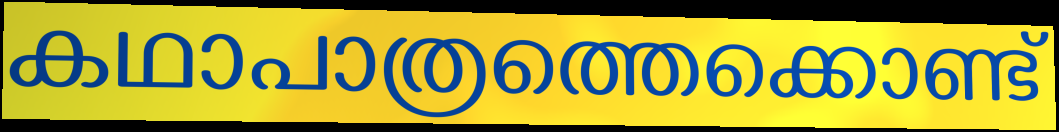
കഥാപാത്രത്തെക്കൊണ്ട്